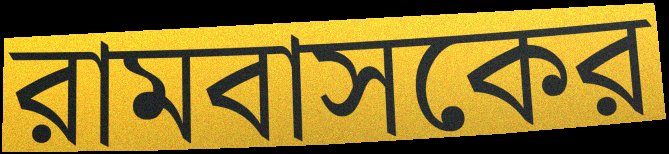
রামবাসকের